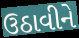
ઉઠાવીને